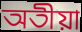
অতীয়া